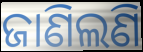
ଜାଣିଲଣି